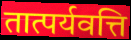
तात्पर्यवत्ति